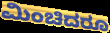
ಮಿಂಚಿದರೂ